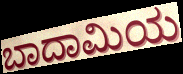
ಬಾದಾಮಿಯ